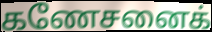
கணேசனைக்